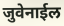
जुवेनाईल